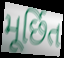
મૂર્છિત